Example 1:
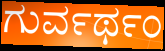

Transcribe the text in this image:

ಗುರ್ವರ್ಥಂ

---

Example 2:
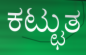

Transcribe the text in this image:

ಕಟ್ಟುತ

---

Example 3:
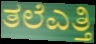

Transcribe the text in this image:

ತಲೆಎತ್ತಿ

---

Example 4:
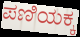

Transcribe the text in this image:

ಪಣಿಯಕ್ಕ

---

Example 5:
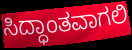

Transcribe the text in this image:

ಸಿದ್ಧಾಂತವಾಗಲಿ